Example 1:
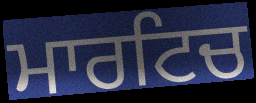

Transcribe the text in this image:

ਮਾਰਟਿਚ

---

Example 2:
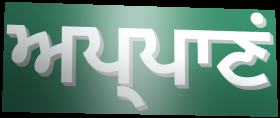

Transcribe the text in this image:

ਅਪ੍ਪਾਣਂ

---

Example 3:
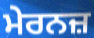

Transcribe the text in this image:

ਮੇਰਨਜ਼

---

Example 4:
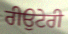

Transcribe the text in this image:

ਰੀਉਟੇਰੀ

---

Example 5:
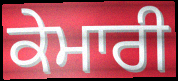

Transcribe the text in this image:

ਕੇਮਾਰੀ